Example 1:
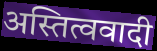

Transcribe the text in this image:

अस्तित्ववादी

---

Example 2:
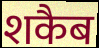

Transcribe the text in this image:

शकैब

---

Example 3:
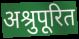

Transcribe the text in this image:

अश्रुपूरित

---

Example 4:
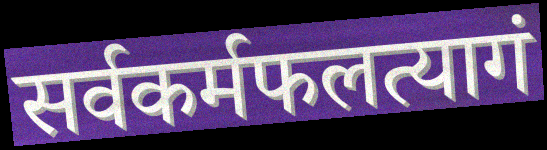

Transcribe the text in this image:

सर्वकर्मफलत्यागं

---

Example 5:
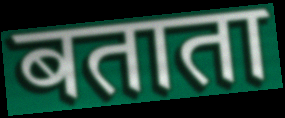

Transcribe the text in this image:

बताता